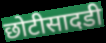
छोटीसादडी